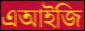
এআইজি